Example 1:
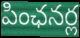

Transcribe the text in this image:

పింఛనర్ల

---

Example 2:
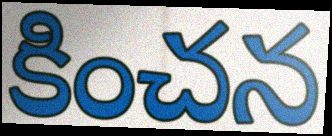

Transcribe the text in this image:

కించన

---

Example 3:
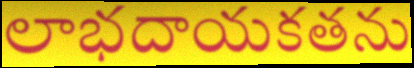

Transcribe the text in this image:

లాభదాయకతను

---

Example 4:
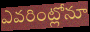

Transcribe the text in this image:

ఎవరింట్లోనూ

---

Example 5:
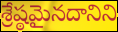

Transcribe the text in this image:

శ్రేష్ఠమైనదానిని